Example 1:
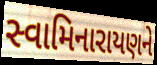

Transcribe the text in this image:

સ્વામિનારાયણને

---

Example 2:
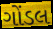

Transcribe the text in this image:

ગોંડલ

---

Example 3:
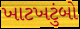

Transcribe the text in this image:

ખાટખટુંબો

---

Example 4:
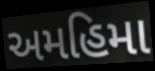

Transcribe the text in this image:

અમહિમા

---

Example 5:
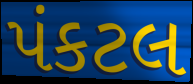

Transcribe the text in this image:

પંકટલ